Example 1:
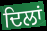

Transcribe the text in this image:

ਦਿਲਾਂ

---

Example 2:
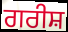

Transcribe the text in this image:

ਗਰੀਸ਼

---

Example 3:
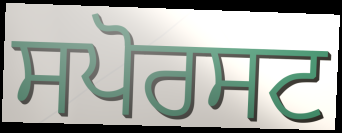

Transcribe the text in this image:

ਸਪੋਰਸਟ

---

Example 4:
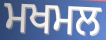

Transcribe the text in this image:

ਮਖਮਲ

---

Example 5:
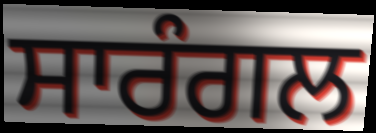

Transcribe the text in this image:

ਸਾਰੰਗਲ